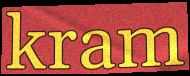
kram